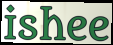
ishee